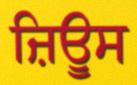
ਜ਼ਿਊਸ